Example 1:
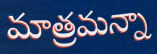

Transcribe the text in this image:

మాత్రమన్నా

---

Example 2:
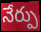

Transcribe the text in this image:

నేర్పు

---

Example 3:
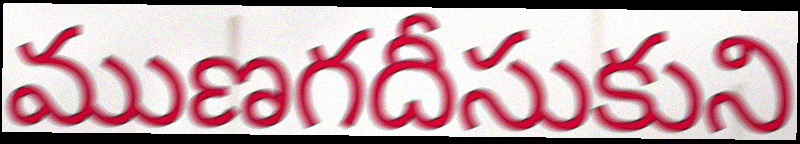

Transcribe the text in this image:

ముణగదీసుకుని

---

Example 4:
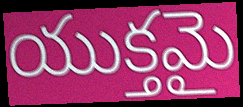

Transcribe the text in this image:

యుక్తమై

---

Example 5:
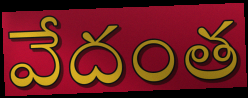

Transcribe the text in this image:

వేదంత